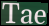
Tae